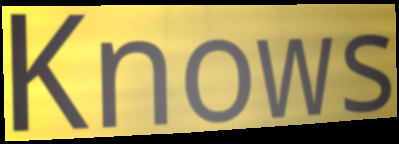
Knows